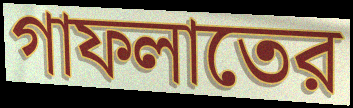
গাফলাতের